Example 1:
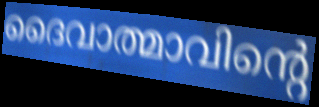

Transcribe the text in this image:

ദൈവാത്മാവിന്റെ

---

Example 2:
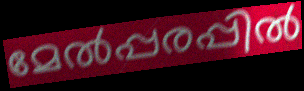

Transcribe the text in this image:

മേൽപ്പരപ്പിൽ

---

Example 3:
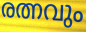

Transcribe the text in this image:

രത്നവും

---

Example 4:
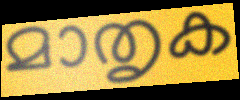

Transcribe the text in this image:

മാതൃക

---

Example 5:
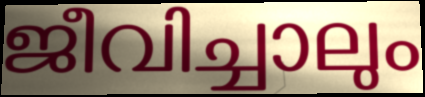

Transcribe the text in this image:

ജീവിച്ചാലും